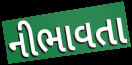
નીભાવતા